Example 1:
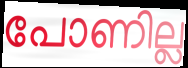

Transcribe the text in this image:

പോണില്ല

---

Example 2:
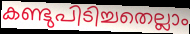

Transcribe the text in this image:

കണ്ടുപിടിച്ചതെല്ലാം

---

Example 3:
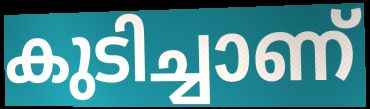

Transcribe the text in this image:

കുടിച്ചാണ്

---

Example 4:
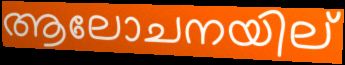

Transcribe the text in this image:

ആലോചനയില്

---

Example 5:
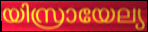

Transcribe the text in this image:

യിസ്രായേല്യ